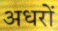
अधरों